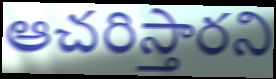
ఆచరిస్తారని